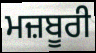
ਮਜ਼ਬੂਰੀ